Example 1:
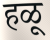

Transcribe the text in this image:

हळू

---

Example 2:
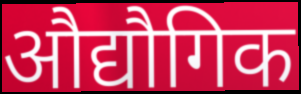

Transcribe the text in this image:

औद्यौगिक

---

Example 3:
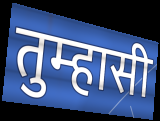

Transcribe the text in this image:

तुम्हासी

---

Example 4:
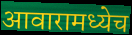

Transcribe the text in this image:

आवारामध्येच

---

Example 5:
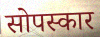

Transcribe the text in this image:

सोपस्कार